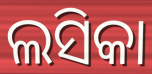
ଲସିକା